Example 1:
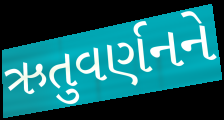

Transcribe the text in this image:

ઋતુવર્ણનને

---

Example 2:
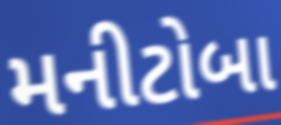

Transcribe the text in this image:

મનીટોબા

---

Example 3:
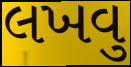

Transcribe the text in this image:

લખવુ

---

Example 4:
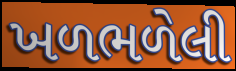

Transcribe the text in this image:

ખળભળેલી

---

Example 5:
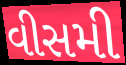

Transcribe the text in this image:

વીસમી